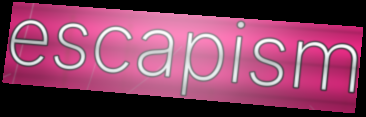
escapism